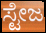
ಸ್ಟೇಜ